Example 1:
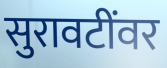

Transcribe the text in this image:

सुरावटींवर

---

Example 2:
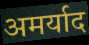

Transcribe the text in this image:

अमर्याद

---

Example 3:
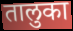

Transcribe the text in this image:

तालुका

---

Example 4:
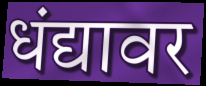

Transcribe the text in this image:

धंद्यावर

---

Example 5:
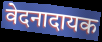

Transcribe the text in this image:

वेदनादायक